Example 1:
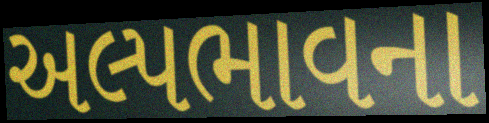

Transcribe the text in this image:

અલ્પભાવના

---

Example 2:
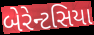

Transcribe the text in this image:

બેરેન્ટસિયા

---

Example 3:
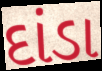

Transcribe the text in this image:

દાંડા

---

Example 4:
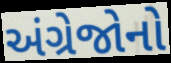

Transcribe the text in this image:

અંગ્રેજોનો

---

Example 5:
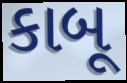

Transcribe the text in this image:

કાબૂ